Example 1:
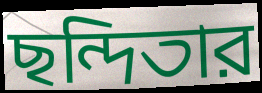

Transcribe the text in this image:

ছন্দিতার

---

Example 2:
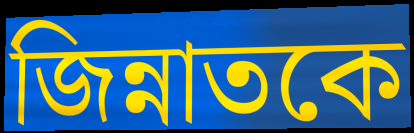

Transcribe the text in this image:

জিন্নাতকে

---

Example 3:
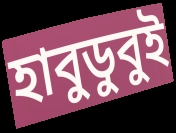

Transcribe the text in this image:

হাবুডুবুই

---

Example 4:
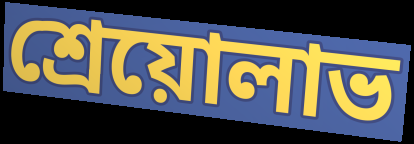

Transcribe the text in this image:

শ্রেয়োলাভ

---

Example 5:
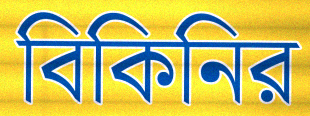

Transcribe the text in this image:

বিকিনির